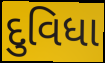
દુવિધા